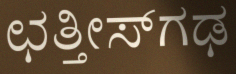
ಛತ್ತೀಸ್‌ಗಢ